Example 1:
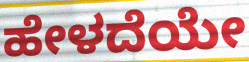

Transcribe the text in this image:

ಹೇಳದೆಯೇ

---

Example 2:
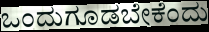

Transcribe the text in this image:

ಒಂದುಗೂಡಬೇಕೆಂದು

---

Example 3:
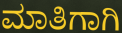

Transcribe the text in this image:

ಮಾತಿಗಾಗಿ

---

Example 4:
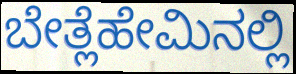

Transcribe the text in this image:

ಬೇತ್ಲೆಹೇಮಿನಲ್ಲಿ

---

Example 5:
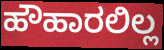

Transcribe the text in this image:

ಹೌಹಾರಲಿಲ್ಲ